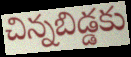
చిన్నబిడ్డకు